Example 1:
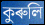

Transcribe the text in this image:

কুৰুলি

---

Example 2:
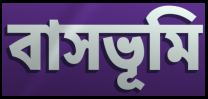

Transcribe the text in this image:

বাসভূমি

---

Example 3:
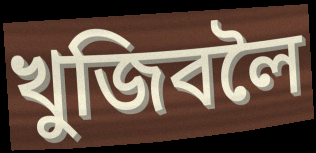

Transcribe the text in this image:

খুজিবলৈ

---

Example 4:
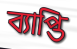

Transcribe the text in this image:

ব্যাপ্তি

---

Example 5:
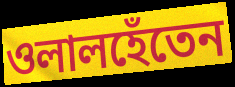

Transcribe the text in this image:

ওলালহেঁতেন